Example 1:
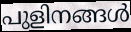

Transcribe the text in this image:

പുളിനങ്ങൾ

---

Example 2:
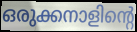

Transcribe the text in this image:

ഒരുക്കനാളിന്റെ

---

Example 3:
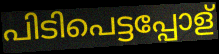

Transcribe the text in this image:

പിടിപെട്ടപ്പോള്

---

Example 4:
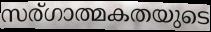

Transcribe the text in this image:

സര്ഗാത്മകതയുടെ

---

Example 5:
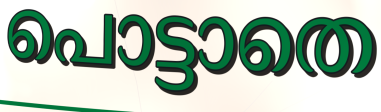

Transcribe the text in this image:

പൊട്ടാതെ